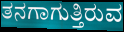
ತನಗಾಗುತ್ತಿರುವ